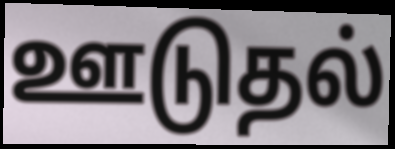
ஊடுதல்